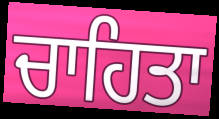
ਚਾਹਿਤਾ